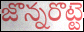
జొన్నరొట్టె